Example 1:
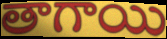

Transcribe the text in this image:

తాగాయి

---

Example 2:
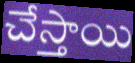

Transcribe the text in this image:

చేస్తాయి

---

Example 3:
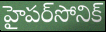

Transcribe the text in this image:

హైపర్‌సోనిక్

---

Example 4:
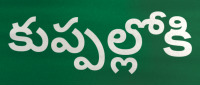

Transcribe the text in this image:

కుప్పల్లోకి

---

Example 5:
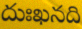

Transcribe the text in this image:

దుఃఖనది